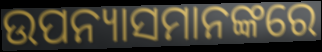
ଉପନ୍ୟାସମାନଙ୍କରେ